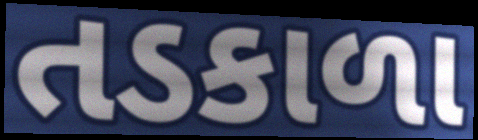
તડકાળા